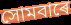
সোমবাৰে